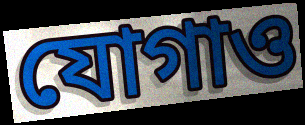
যোগাও